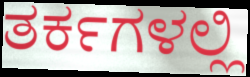
ತರ್ಕಗಳಲ್ಲಿ